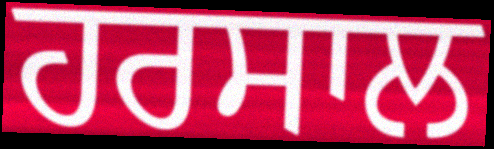
ਹਰਸਾਲ